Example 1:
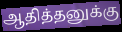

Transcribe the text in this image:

ஆதித்தனுக்கு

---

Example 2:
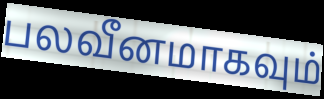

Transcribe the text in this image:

பலவீனமாகவும்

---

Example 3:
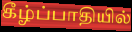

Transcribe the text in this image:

கீழ்ப்பாதியில்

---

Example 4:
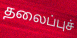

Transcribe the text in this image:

தலைப்புச்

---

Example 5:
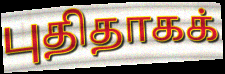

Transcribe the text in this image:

புதிதாகக்